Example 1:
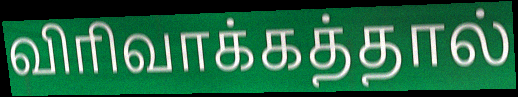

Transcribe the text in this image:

விரிவாக்கத்தால்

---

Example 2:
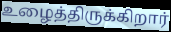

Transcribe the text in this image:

உழைத்திருக்கிறார்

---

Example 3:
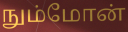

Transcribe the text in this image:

நும்மோன்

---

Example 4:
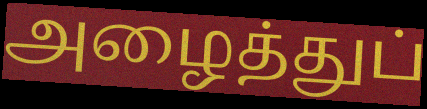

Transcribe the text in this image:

அழைத்துப்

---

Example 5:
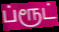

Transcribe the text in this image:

ப்ரூட்